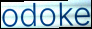
odoke